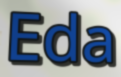
Eda